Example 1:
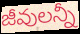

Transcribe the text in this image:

జీవులన్నీ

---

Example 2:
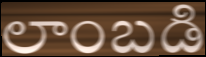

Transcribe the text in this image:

లాంబడి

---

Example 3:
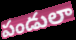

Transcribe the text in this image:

పండులా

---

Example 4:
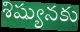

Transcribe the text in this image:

శిష్యునకు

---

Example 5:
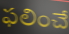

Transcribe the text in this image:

ఫలించే